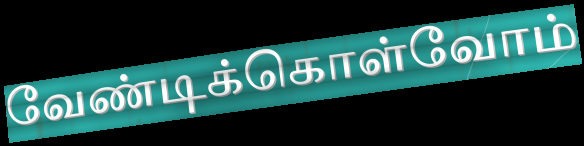
வேண்டிக்கொள்வோம்